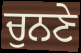
ਚੁਨਣੇ